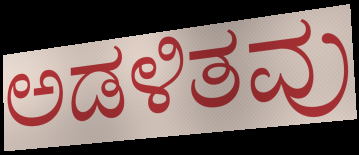
ಅಡಳಿತವು